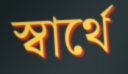
স্বার্থে